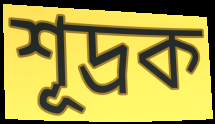
শূদ্ৰক